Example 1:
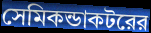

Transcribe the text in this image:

সেমিকন্ডাকটরের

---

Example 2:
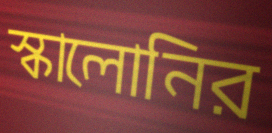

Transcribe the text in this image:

স্কালোনির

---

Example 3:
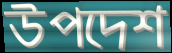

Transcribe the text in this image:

উপদেশ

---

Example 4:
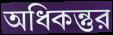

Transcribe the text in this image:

অধিকন্তুর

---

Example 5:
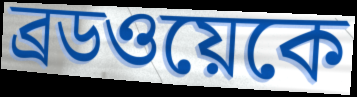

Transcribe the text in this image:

ব্রডওয়েকে